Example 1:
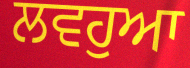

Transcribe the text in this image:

ਲਵਹੁਆ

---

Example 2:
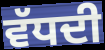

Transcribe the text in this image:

ਵੱਧਦੀ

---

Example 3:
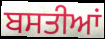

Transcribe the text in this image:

ਬਸਤੀਆਂ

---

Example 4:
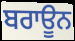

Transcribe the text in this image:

ਬਰਾਊਨ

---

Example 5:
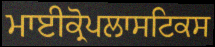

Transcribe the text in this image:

ਮਾਈਕ੍ਰੋਪਲਾਸਟਿਕਸ